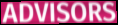
ADVISORS